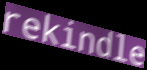
rekindle